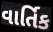
વાર્તિક